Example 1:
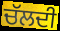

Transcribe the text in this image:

ਚੱਲਦੀ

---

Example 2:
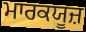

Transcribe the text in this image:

ਮਾਰਕਯੂਜ਼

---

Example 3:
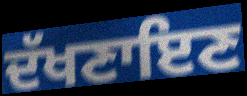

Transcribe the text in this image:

ਦੱਖਣਾਇਣ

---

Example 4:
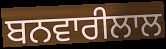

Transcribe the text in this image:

ਬਨਵਾਰੀਲਾਲ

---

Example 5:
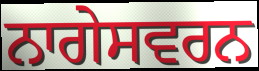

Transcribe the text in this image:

ਨਾਗੇਸਵਰਨ